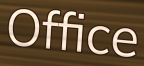
Office